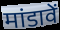
मांडावें